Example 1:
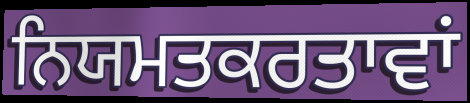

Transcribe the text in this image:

ਨਿਯਮਤਕਰਤਾਵਾਂ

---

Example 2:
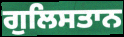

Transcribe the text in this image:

ਗੁਲਿਸਤਾਨ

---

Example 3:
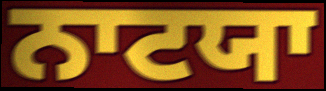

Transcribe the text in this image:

ਨਾਟਯਾ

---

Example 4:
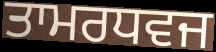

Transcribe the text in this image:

ਤਾਮਰਧਵਜ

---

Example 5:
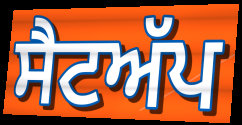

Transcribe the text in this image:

ਸੈਟਅੱਪ